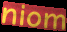
niom